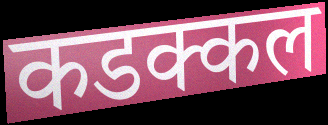
कडक्कल